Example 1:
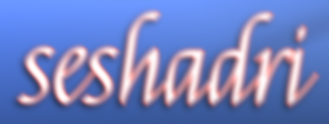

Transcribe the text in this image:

seshadri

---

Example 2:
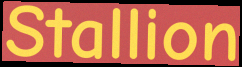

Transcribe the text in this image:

Stallion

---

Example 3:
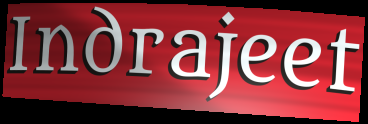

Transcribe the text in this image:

Indrajeet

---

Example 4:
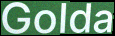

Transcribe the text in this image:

Golda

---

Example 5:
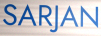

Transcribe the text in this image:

SARJAN